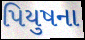
પિયુષના